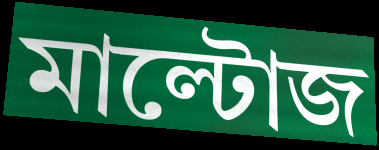
মাল্টোজ